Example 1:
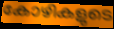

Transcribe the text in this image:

കോഴികളുടെ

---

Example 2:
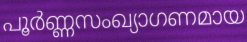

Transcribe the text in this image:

പൂർണ്ണസംഖ്യാഗണമായ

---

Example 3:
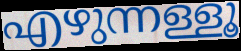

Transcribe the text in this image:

എഴുന്നള്ളൂ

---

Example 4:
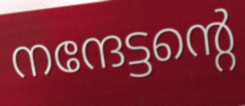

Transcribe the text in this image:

നന്ദേട്ടന്റെ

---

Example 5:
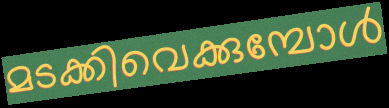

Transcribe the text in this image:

മടക്കിവെക്കുമ്പോൾ